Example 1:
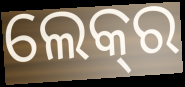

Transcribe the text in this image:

ଲେକ୍‍ର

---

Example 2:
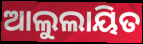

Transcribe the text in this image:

ଆଲୁଲାୟିତ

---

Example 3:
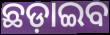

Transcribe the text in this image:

ଛଡ଼ାଇବ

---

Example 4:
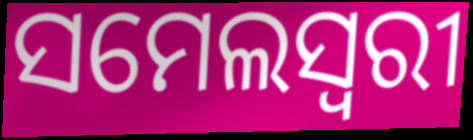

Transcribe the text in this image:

ସମେଲସ୍ୱରୀ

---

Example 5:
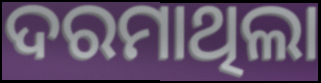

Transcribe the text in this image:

ଦରମାଥିଲା